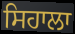
ਸਿਹਾਲਾ